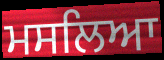
ਮਸਲਿਆ